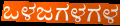
ಒಳಜಗಳಗಳ